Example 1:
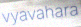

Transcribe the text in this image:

vyavahara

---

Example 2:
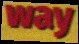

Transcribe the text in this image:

way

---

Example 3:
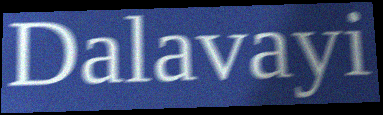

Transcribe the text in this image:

Dalavayi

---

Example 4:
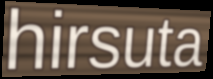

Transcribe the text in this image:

hirsuta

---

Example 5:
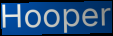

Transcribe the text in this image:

Hooper